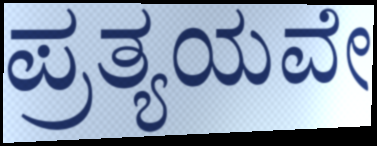
ಪ್ರತ್ಯಯವೇ